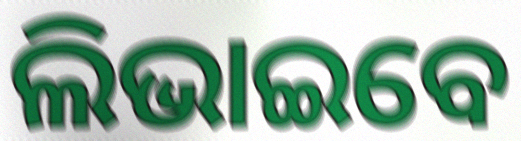
ଲିଭାଇବେ